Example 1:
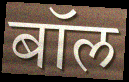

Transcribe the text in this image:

बॉल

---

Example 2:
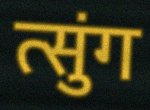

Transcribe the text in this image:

त्सुंग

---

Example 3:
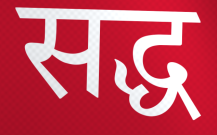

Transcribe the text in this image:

सद्ध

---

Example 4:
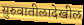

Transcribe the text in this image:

सुरुवातीलादेखील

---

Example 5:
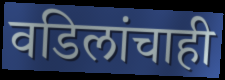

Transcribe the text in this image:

वडिलांचाही